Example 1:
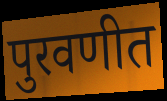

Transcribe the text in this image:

पुरवणीत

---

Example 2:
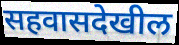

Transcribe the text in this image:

सहवासदेखील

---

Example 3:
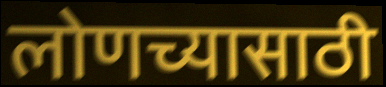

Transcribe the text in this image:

लोणच्यासाठी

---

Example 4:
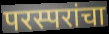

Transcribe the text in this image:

परस्परांचा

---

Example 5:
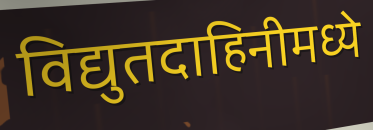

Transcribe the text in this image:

विद्युतदाहिनीमध्ये